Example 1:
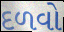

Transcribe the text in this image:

દળવો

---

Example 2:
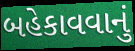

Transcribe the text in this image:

બહેકાવવાનું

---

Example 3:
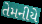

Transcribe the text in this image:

તેમનીયે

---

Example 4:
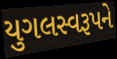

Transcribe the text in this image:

યુગલસ્વરૂપને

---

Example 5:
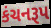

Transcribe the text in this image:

કંચનરૂપ